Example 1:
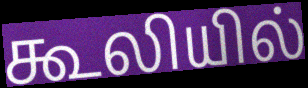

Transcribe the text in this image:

கூலியில்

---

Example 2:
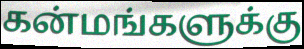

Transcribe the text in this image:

கன்மங்களுக்கு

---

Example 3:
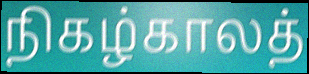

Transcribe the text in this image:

நிகழ்காலத்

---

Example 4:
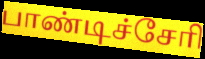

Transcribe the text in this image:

பாண்டிச்சேரி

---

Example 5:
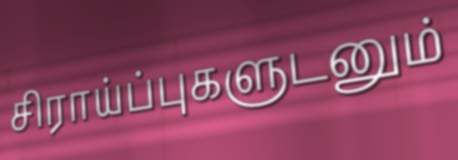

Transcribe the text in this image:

சிராய்ப்புகளுடனும்